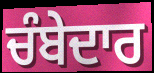
ਚੰਬੇਦਾਰ